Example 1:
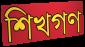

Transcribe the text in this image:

শিখগণ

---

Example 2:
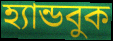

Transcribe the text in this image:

হ্যান্ডবুক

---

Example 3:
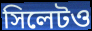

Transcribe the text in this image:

সিলেটও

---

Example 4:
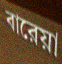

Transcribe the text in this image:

বারেয়া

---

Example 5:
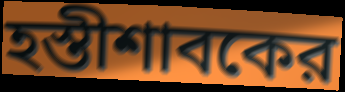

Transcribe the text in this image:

হস্তীশাবকের